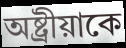
অষ্ট্রীয়াকে